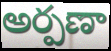
అర్పణా